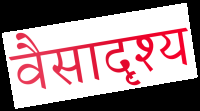
वैसादृश्य